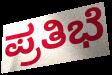
ಪ್ರತಿಭೆ